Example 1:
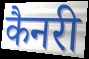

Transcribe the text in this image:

कैनरी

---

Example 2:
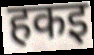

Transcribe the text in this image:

हकइ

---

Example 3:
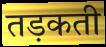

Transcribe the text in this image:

तड़कती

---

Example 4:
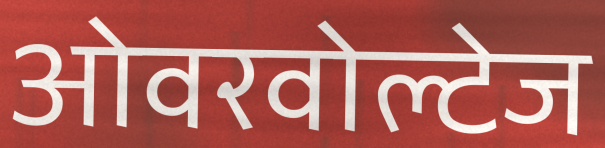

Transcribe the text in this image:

ओवरवोल्टेज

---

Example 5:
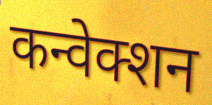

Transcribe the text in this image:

कन्वेक्शन